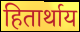
हितार्थाय